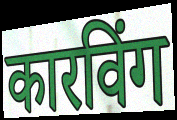
कारविंग